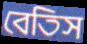
বেতিস